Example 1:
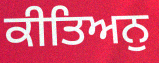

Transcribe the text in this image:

ਕੀਤਿਅਨੁ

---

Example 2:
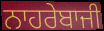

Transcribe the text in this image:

ਨਾਹਰੇਬਾਜੀ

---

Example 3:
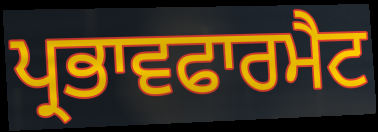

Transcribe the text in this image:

ਪ੍ਰਭਾਵਫਾਰਮੈਟ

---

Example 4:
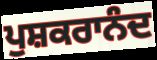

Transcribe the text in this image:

ਪੁਸ਼ਕਰਾਨੰਦ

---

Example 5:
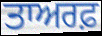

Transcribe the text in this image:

ਤਾਅਰਫ਼